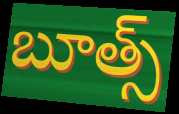
బూత్స్